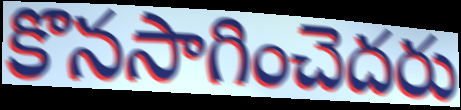
కొనసాగించెదరు